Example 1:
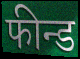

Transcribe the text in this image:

फीन्ड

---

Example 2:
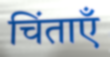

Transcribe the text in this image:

चिंताएँ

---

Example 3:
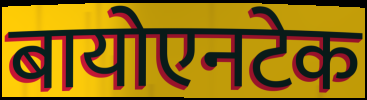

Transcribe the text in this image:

बायोएनटेक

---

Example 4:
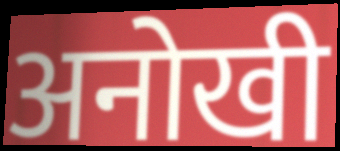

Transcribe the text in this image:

अनोखी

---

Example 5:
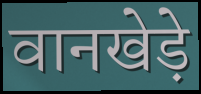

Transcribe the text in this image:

वानखेड़े